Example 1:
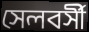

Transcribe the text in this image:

সেলবর্সী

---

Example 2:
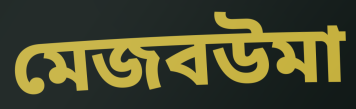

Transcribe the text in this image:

মেজবউমা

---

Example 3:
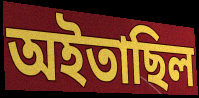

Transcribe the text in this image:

অইতাছিল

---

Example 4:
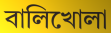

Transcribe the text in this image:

বালিখোলা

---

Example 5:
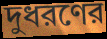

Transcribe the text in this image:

দুধরণের